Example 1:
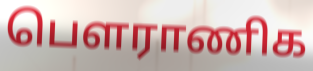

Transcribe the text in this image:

பௌராணிக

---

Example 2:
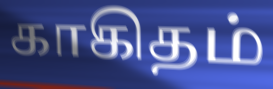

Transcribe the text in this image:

காகிதம்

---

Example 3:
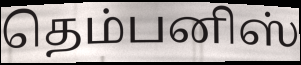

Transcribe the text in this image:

தெம்பனிஸ்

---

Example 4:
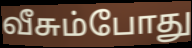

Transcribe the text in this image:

வீசும்போது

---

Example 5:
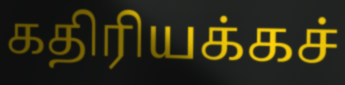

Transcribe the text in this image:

கதிரியக்கச்